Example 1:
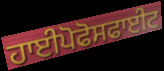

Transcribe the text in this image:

ਹਾਈਪੋਫੋਸਫਾਈਟ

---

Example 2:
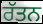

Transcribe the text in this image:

ਰੱਤਨ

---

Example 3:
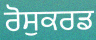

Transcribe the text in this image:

ਰੋਸੁਕਰਡ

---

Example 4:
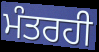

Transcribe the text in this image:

ਮੰਤਰਹੀ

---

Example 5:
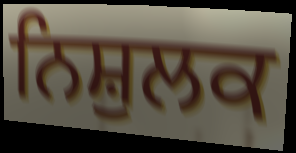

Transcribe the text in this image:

ਨਿਸ਼ੁਲਕ